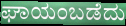
ಘಾಯಂಬಡೆದು